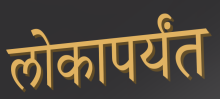
लोकापर्यंत